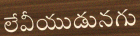
లేవీయుడునగు